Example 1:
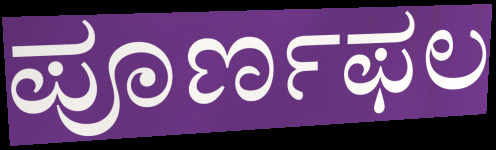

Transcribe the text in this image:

ಪೂರ್ಣಫಲ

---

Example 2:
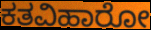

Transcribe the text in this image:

ಕತವಿಹಾರೋ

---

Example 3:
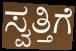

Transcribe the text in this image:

ಸ್ವತ್ತಿಗೆ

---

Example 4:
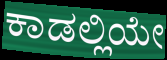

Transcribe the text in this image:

ಕಾಡಲ್ಲಿಯೇ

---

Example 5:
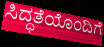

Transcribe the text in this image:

ಸಿದ್ಧತೆಯೊಂದಿಗೆ